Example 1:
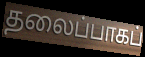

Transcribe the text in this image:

தலைப்பாகப்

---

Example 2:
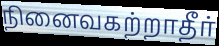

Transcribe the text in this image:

நினைவகற்றாதீர்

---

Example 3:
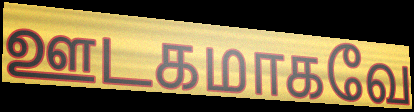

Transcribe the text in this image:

ஊடகமாகவே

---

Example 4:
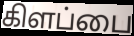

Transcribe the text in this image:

கிளப்பை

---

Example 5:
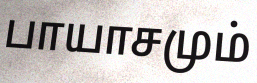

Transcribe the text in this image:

பாயாசமும்